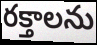
రక్తాలను